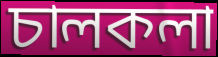
চালকলা